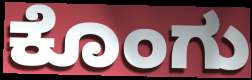
ಕೊಂಗು